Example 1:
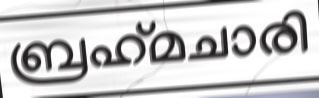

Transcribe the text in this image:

ബ്രഹ്‌മചാരി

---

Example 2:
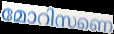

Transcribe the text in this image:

മോറിസണെ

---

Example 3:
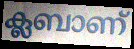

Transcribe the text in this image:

ക്ലബാണ്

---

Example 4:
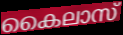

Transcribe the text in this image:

കൈലാസ്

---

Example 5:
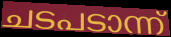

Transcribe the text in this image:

ചടപടാന്ന്